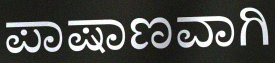
ಪಾಷಾಣವಾಗಿ